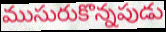
ముసురుకొన్నపుడు